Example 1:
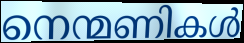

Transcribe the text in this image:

നെന്മണികൾ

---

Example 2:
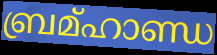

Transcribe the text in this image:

ബ്രമ്ഹാണ്ഡ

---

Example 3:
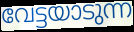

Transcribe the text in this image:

വേട്ടയാടുന്ന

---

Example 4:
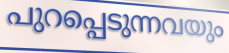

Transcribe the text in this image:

പുറപ്പെടുന്നവയും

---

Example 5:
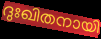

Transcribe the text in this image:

ദുഃഖിതനായി